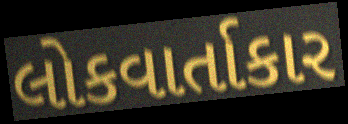
લોકવાર્તાકાર